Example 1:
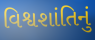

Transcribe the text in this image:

વિશ્વશાંતિનું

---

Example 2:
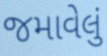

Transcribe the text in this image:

જમાવેલું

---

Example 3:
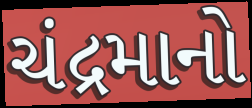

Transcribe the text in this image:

ચંદ્રમાનો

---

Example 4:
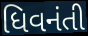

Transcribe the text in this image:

ધિવનંતી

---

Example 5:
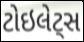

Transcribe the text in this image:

ટોઇલેટ્સ